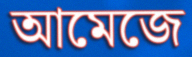
আমেজে